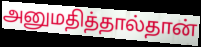
அனுமதித்தால்தான்